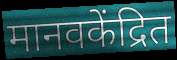
मानवकेंद्रित